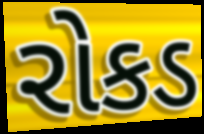
રોકડ